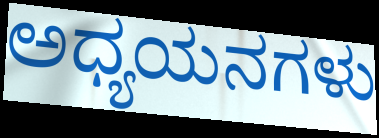
ಅಧ್ಯಯನಗಳು